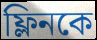
ফ্লিনকে